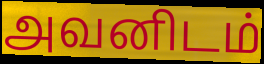
அவனிடம்